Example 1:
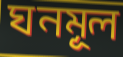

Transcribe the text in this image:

ঘনমূল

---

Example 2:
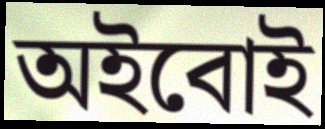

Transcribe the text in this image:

অইবোই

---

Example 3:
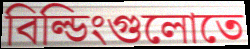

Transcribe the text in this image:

বিল্ডিংগুলোতে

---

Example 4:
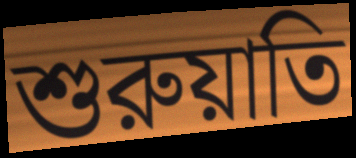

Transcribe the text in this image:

শুরুয়াতি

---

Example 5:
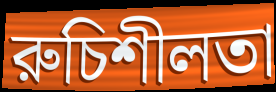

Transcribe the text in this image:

রুচিশীলতা